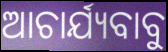
ଆଚାର୍ଯ୍ୟବାବୁ